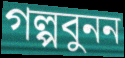
গল্পবুনন